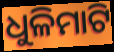
ଧୁଳିମାଟି